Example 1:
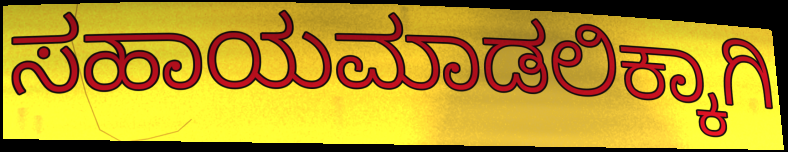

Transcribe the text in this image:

ಸಹಾಯಮಾಡಲಿಕ್ಕಾಗಿ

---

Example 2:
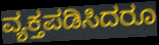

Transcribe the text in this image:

ವ್ಯಕ್ತಪಡಿಸಿದರೂ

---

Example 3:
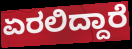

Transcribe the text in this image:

ಏರಲಿದ್ದಾರೆ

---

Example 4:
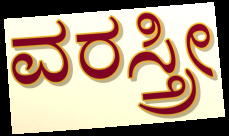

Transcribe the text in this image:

ವರಸ್ತ್ರೀ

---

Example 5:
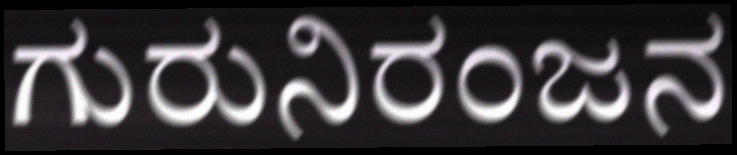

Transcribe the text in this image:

ಗುರುನಿರಂಜನ